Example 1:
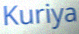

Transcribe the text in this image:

Kuriya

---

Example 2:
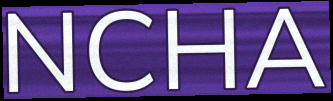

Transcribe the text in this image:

NCHA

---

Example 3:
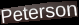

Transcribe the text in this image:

Peterson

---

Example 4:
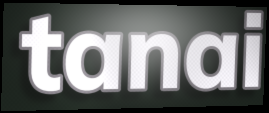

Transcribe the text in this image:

tanai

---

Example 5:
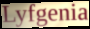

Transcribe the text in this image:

Lyfgenia